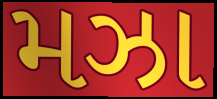
મઝા